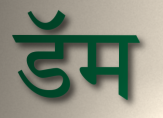
डॅम